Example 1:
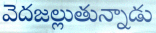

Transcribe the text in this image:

వెదజల్లుతున్నాడు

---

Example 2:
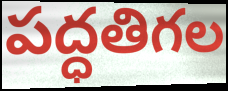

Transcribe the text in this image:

పద్ధతిగల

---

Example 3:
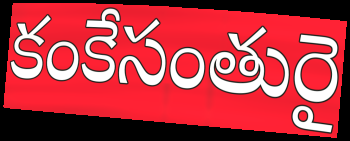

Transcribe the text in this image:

కంకేసంతురై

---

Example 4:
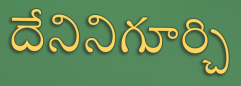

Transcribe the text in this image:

దేనినిగూర్చి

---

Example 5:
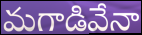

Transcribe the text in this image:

మగాడివేనా